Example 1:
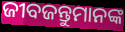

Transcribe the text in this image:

ଜୀବଜନ୍ତୁମାନଙ୍କ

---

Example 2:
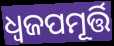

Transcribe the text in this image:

ଧ୍ୱଜପମୂର୍ତ୍ତି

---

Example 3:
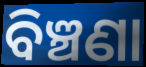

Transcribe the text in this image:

ବିଞ୍ଚଣା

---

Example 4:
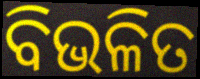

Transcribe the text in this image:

ବିଭଳିତ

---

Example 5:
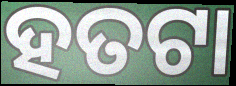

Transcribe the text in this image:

ହତଟା